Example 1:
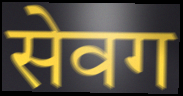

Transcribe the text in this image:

सेवग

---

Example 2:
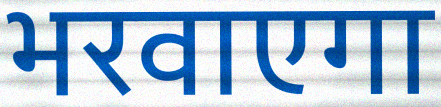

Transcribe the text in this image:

भरवाएगा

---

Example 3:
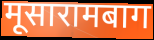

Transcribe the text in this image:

मूसारामबाग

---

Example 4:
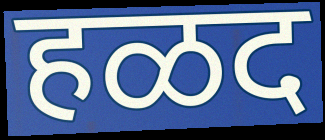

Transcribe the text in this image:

हळद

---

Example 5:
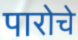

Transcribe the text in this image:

पारोचे